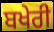
ਬਖੇਰੀ